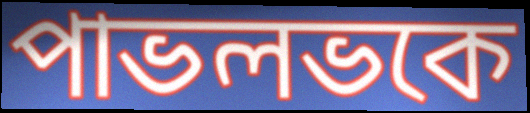
পাভলভকে